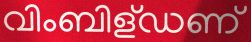
വിംബിള്ഡണ്